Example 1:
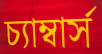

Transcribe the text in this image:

চ্যাম্বার্স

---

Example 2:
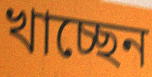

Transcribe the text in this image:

খাচ্ছেন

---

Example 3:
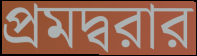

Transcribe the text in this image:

প্রমদ্বরার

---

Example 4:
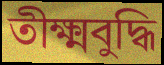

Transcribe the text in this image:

তীক্ষ্মবুদ্ধি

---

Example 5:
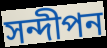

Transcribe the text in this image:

সন্দীপন